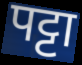
पट्टा